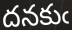
దనకుఁ